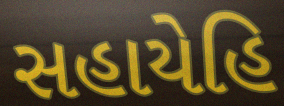
સહાયેહિ